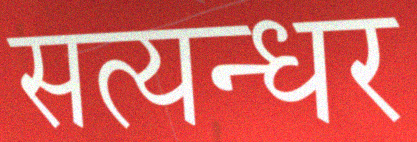
सत्यन्धर